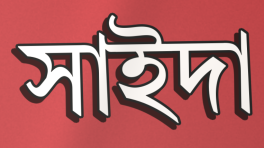
সাইদা